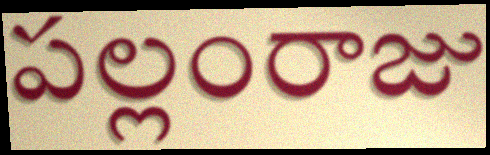
పల్లంరాజు